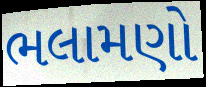
ભલામણો